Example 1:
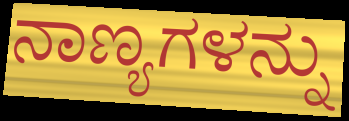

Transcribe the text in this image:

ನಾಣ್ಯಗಳನ್ನು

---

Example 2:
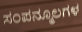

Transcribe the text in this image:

ಸಂಪನ್ಮೂಲಗಳ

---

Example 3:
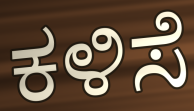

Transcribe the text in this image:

ಕಳಿಸೆ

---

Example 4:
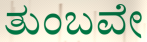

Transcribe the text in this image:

ತುಂಬವೇ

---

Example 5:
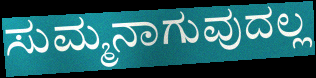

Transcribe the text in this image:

ಸುಮ್ಮನಾಗುವುದಲ್ಲ